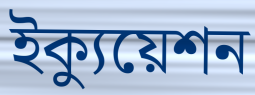
ইক্যুয়েশন